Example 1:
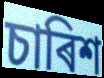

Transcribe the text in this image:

চাৰিশ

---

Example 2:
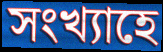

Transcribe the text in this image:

সংখ্যাহে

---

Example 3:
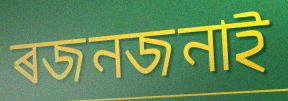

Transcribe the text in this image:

ৰজনজনাই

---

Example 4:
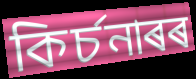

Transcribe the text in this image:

কিৰ্চনাৰৰ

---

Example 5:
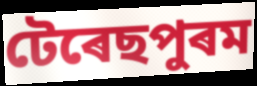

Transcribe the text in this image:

টেৰেছপুৰম